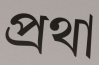
প্রথা